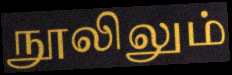
நூலிலும்